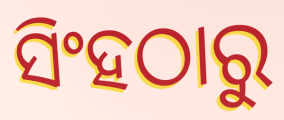
ସିଂହଠାରୁ